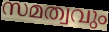
സമത്വവും